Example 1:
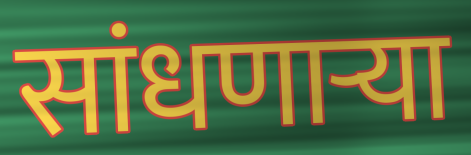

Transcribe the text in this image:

सांधणार्‍या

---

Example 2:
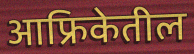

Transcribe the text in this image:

आफ्रिकेतील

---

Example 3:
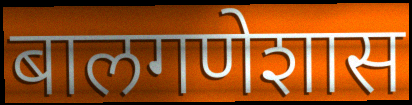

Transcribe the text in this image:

बालगणेशास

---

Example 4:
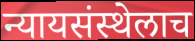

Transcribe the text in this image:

न्यायसंस्थेलाच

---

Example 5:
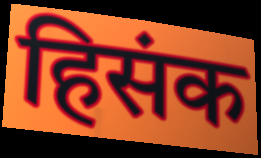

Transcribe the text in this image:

हिसंक